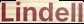
Lindell